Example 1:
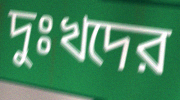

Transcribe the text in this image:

দুঃখদের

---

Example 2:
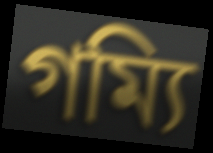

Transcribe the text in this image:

গম্যি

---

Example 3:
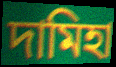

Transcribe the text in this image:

দামিহা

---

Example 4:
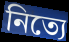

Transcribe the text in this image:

নিত্যে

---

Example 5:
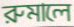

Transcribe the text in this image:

রুমালে